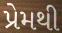
પ્રેમથી